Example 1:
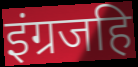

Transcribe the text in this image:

इंग्रजहि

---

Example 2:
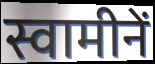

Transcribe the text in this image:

स्वामीनें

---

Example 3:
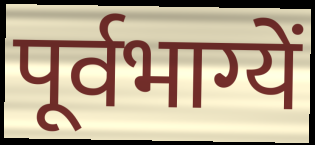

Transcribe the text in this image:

पूर्वभाग्यें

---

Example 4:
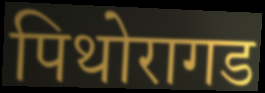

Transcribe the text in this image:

पिथोरागड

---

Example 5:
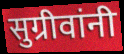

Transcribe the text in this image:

सुग्रीवांनी